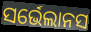
ସର୍ଭେଲାନସ